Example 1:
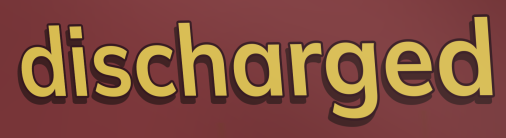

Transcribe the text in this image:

discharged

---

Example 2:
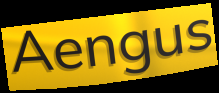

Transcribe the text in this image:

Aengus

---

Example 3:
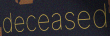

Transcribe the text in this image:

deceased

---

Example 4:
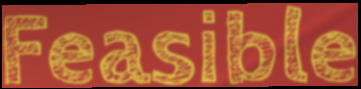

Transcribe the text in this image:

Feasible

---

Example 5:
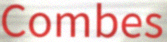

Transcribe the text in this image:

Combes